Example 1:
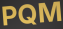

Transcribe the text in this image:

PQM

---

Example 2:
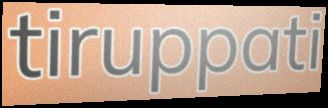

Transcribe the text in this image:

tiruppati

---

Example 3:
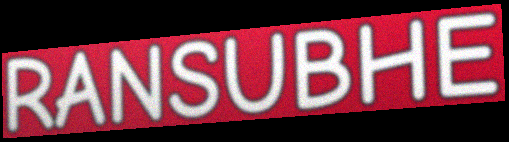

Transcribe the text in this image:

RANSUBHE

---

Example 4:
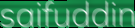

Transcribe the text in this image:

saifuddin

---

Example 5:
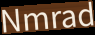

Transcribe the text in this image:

Nmrad